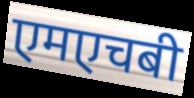
एमएचबी